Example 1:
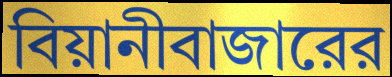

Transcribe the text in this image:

বিয়ানীবাজারের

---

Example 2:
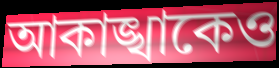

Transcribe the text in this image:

আকাঙ্খাকেও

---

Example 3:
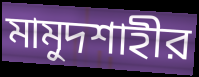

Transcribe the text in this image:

মামুদশাহীর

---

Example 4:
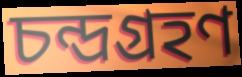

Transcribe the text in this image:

চন্দ্রগ্রহণ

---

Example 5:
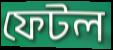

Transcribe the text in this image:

ফেটল